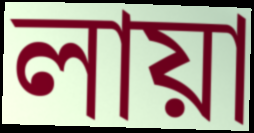
লায়া